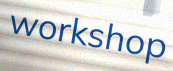
workshop